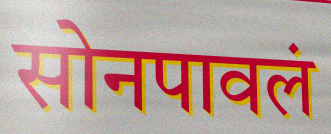
सोनपावलं